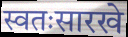
स्वतःसारखे